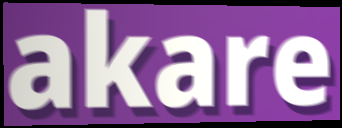
akare